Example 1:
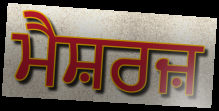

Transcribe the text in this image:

ਮੈਸ਼ਰਜ਼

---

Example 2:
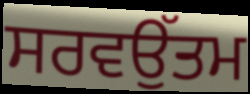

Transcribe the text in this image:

ਸਰਵਉੱਤਮ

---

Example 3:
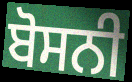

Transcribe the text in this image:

ਬੋਸਨੀ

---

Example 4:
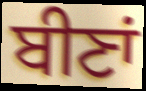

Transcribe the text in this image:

ਬੀਣਾਂ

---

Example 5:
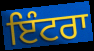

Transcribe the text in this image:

ਇੰਟਰਾ